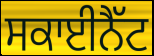
ਸਕਾਈਨੈੱਟ